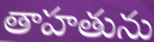
తాహతును